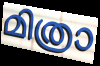
മിത്രാ